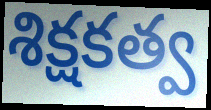
శిక్షకత్వ